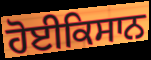
ਹੋਈਕਿਸਾਨ